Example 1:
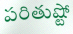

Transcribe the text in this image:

పరితుష్టో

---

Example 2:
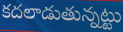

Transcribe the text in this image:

కదలాడుతున్నట్టు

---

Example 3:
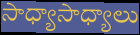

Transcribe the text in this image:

సాధ్యాసాధ్యాలు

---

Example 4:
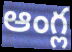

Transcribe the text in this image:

ఆంగ్ల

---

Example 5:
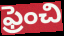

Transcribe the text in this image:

ఫ్రెంచి